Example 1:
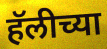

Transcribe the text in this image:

हॅलीच्या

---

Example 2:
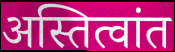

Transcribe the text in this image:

अस्तित्वांत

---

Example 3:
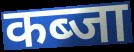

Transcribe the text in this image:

कब्जा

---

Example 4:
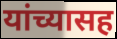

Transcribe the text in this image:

यांच्यासह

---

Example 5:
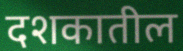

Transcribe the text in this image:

दशकातील